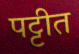
पट्टीत